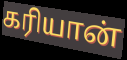
கரியான்